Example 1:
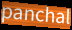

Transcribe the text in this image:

panchal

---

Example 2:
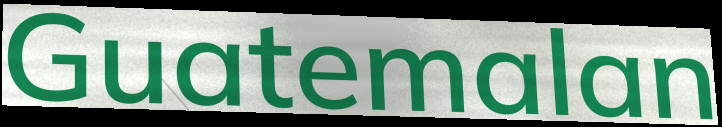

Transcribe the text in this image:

Guatemalan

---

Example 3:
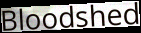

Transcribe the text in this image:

Bloodshed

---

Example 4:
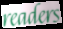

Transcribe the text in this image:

readers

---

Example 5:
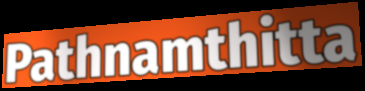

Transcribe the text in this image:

Pathnamthitta